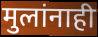
मुलांनाही